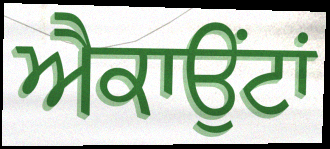
ਐਕਾਉਂਟਾਂ